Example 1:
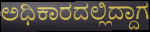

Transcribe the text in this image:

ಅಧಿಕಾರದಲ್ಲಿದ್ದಾಗ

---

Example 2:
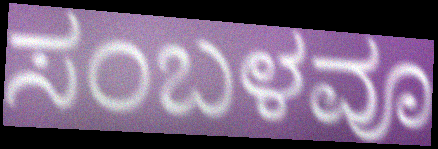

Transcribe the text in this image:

ಸಂಬಳವೂ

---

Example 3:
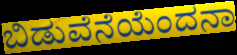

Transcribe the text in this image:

ಬಿಡುವೆನೆಯೆಂದನಾ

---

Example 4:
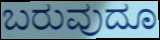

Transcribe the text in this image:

ಬರುವುದೂ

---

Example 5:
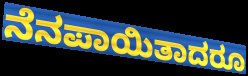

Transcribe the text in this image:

ನೆನಪಾಯಿತಾದರೂ